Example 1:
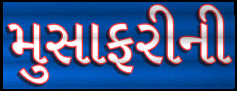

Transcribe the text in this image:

મુસાફરીની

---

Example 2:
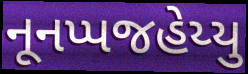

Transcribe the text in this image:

નૂનપ્પજહેય્યુ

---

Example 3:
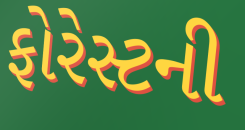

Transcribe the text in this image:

ફોરેસ્ટની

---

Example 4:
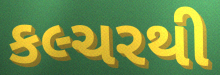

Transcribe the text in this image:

કલ્ચરથી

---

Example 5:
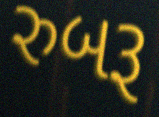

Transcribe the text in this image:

રુબરૂ